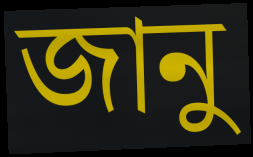
জানু